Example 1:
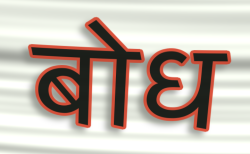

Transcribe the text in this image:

बोध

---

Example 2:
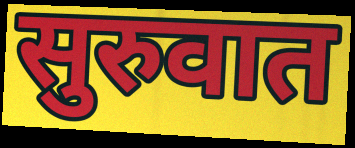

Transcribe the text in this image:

सुरुवात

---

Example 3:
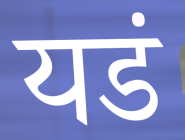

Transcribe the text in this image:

यडं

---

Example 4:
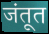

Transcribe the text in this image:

जंतूत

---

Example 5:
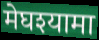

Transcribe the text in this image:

मेघश्यामा